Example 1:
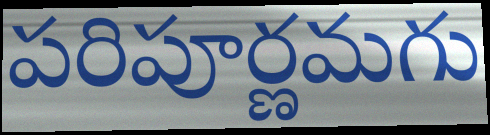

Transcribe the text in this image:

పరిపూర్ణమగు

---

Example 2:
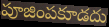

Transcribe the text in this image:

పూజింపకూడదు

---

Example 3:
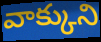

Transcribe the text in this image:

వాక్కుని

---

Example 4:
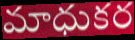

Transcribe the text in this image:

మాధుకర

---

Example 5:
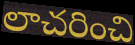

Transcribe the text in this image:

లాచరించి